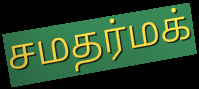
சமதர்மக்